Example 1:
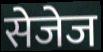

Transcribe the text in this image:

सेजेज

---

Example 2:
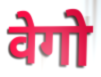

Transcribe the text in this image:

वेगो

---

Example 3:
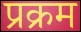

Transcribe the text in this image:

प्रक्रम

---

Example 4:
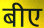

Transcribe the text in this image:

बीए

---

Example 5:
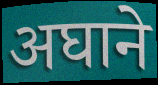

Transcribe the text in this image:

अघाने